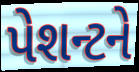
પેશન્ટને